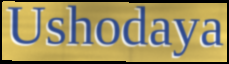
Ushodaya